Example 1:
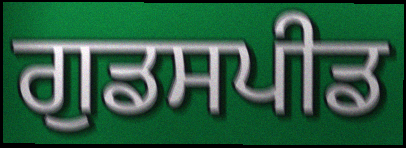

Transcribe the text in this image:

ਗੁਡਸਪੀਡ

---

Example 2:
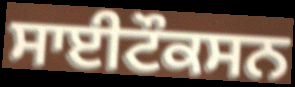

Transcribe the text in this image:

ਸਾਈਟੌਕਸਨ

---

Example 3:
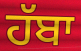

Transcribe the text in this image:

ਹੱਬਾ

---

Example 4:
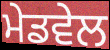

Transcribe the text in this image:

ਮੇਡਵੇਲ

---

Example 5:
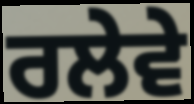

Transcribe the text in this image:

ਰਲੇਵੇ